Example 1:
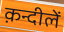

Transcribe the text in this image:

क़न्दीलें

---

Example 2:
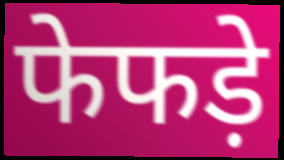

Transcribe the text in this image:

फेफड़े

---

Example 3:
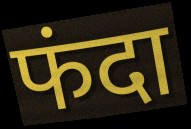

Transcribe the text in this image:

फंदा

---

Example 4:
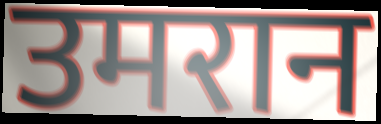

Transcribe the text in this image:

उमरान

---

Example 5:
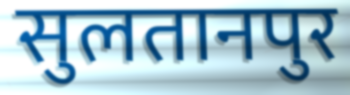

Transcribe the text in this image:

सुलतानपुर